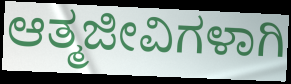
ಆತ್ಮಜೀವಿಗಳಾಗಿ